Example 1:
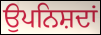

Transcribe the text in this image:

ਉਪਨਿਸ਼ਦਾਂ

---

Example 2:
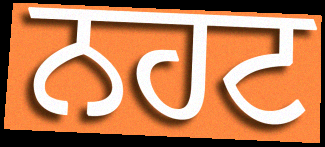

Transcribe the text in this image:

ਨਹਟ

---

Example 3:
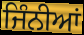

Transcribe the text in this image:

ਜਿੰਨੀਆਂ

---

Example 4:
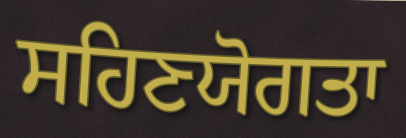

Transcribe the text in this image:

ਸਹਿਣਯੋਗਤਾ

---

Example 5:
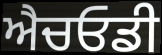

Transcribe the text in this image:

ਐਚਓਡੀ